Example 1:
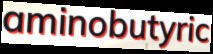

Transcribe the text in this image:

aminobutyric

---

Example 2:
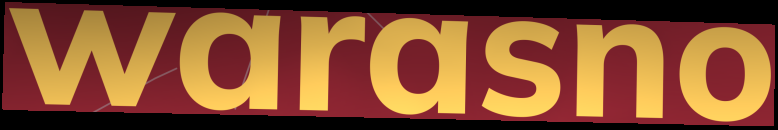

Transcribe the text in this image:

warasno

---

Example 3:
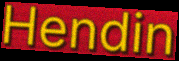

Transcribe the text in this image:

Hendin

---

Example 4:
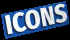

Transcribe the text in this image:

ICONS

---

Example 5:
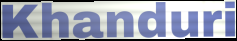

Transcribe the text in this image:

Khanduri